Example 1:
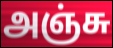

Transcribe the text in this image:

அஞ்சு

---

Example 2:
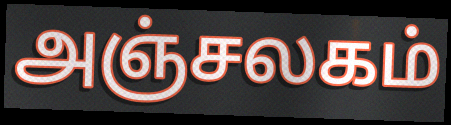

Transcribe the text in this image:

அஞ்சலகம்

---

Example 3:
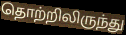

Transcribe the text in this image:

தொற்றிலிருந்து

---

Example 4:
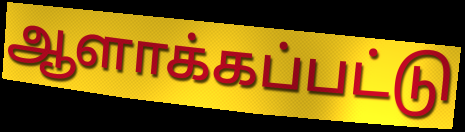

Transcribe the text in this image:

ஆளாக்கப்பட்டு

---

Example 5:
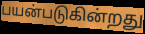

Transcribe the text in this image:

பயன்படுகின்றது